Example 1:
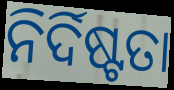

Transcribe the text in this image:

ନିର୍ଦିଷ୍ଟତା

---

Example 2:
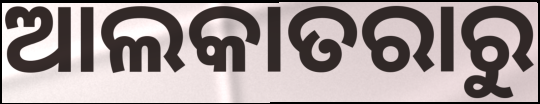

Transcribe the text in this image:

ଆଲକାତରାରୁ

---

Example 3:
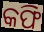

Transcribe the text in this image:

କଫି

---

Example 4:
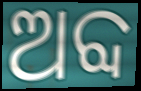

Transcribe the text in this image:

ଅବ୍ଦ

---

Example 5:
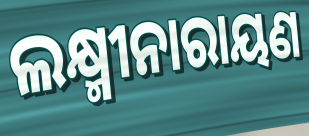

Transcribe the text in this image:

ଲକ୍ଷ୍ମୀନାରାୟଣ